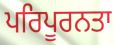
ਪਰਿਪੂਰਨਤਾ